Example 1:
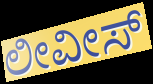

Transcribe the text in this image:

ಲೀವೀಸ್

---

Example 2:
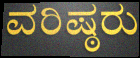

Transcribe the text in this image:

ವರಿಷ್ಠರು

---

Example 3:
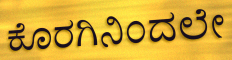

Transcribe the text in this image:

ಕೊರಗಿನಿಂದಲೇ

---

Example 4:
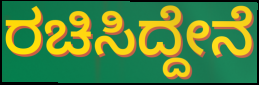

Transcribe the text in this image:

ರಚಿಸಿದ್ದೇನೆ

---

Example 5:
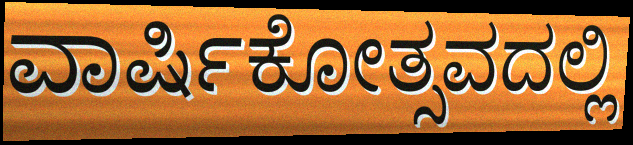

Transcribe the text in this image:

ವಾರ್ಷಿಕೋತ್ಸವದಲ್ಲಿ